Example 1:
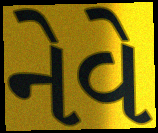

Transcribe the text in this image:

નેવે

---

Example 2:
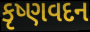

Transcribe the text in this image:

કૃષ્ણવદન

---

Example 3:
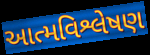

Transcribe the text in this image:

આત્મવિશ્લેષણ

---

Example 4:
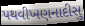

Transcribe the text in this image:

પથવીખણનાદીસુ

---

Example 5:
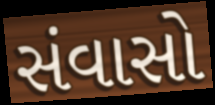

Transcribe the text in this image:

સંવાસો